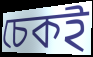
চেকই